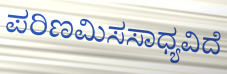
ಪರಿಣಮಿಸಸಾಧ್ಯವಿದೆ